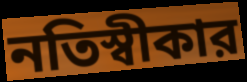
নতিস্বীকার